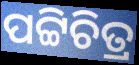
ପଟ୍ଟିଚିତ୍ର